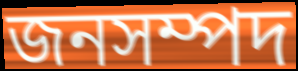
জনসম্পদ